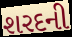
શરદની